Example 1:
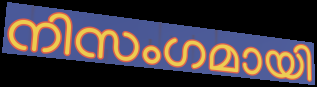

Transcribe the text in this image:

നിസംഗമായി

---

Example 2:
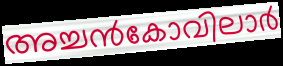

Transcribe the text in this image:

അച്ചൻകോവിലാർ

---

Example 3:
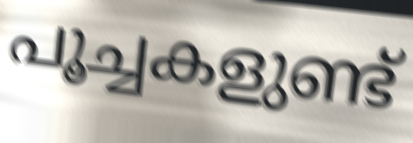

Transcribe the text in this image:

പൂച്ചകളുണ്ട്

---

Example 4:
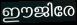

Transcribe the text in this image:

ഈജിരേ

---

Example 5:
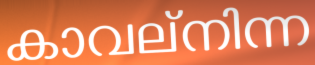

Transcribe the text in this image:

കാവല്നിന്ന